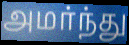
அமர்ந்து